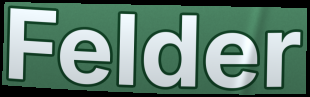
Felder